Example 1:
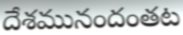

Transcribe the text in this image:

దేశమునందంతట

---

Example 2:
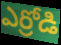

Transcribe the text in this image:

ఎర్రోడి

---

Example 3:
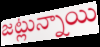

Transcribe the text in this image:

జట్లున్నాయి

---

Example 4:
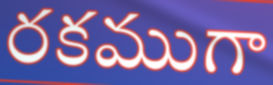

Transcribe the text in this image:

రకముగా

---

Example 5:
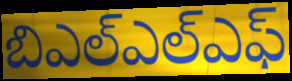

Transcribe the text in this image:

బిఎల్ఎల్ఎఫ్